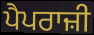
ਪੈਪਰਾਜ਼ੀ